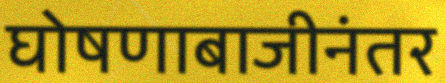
घोषणाबाजीनंतर